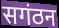
सगंठन